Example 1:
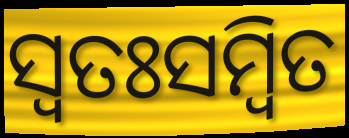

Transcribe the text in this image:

ସ୍ୱତଃସମ୍ବିତ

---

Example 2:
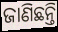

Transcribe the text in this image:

ଜାଣିଛନ୍ତି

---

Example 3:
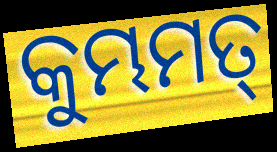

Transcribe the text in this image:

କୁମ୍ଭମତ୍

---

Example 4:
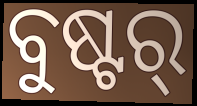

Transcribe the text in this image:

ବୁଷ୍ଟର୍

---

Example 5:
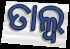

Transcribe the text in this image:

ତାଲ୍ୱ